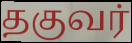
தகுவர்